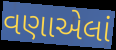
વણાએલાં